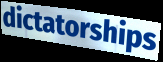
dictatorships